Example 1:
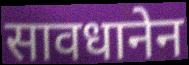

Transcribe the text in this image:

सावधानेन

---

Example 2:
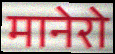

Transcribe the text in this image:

मानेरो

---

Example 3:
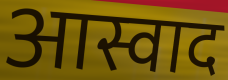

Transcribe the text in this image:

आस्‍वाद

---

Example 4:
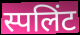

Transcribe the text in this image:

स्पलिंट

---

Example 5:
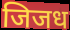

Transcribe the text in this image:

जिजध